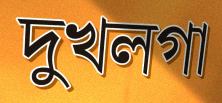
দুখলগা